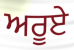
ਅਰੂਏ